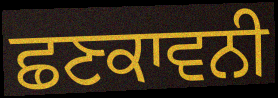
ਛਣਕਾਵਨੀ